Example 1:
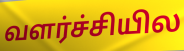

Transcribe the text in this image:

வளர்ச்சியில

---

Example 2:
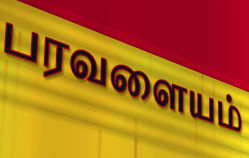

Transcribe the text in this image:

பரவளையம்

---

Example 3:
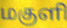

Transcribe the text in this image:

மகுளி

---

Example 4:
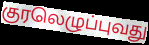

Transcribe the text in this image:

குரலெழுப்புவது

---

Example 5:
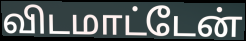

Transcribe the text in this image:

விடமாட்டேன்